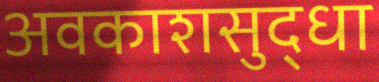
अवकाशसुद्धा